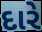
દારે